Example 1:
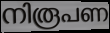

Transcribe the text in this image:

നിരൂപണ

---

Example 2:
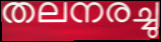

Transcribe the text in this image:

തലനരച്ചു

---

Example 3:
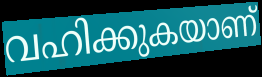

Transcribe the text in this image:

വഹിക്കുകയാണ്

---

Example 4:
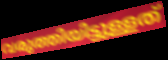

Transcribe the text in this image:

വരുത്തിയിട്ടുള്ളത്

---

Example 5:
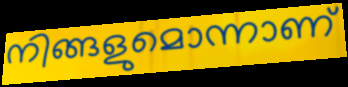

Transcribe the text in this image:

നിങ്ങളുമൊന്നാണ്